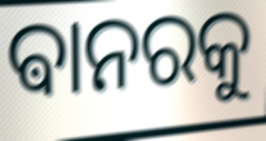
ଵାନରକୁ